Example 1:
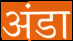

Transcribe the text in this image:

अंडा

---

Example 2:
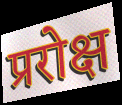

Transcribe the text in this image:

प्ररोक्ष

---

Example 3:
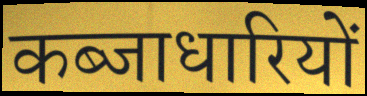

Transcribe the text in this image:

कब्जाधारियों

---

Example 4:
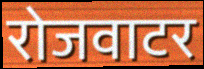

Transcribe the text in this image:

रोजवाटर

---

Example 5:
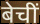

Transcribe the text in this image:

बेचीं